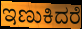
ಇಣುಕಿದರೆ